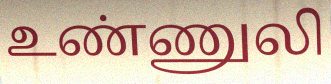
உண்ணுலி